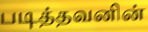
படித்தவனின்